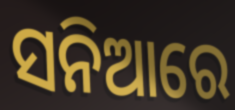
ସନିଆରେ